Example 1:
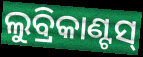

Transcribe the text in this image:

ଲୁବ୍ରିକାଣ୍ଟସ୍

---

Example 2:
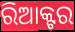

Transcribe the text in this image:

ରିଆକ୍ଟର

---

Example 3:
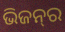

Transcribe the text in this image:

ଭିଜନ୍‌ର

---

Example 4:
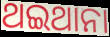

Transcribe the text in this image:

ଥଇଥାନା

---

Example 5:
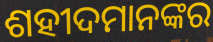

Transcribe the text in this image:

ଶହୀଦମାନଙ୍କର